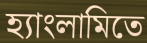
হ্যাংলামিতে